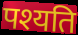
पश्यति